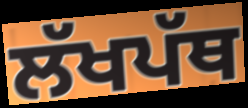
ਲੱਖਪੱਥ